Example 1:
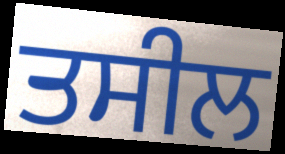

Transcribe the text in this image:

ਤਸੀਲ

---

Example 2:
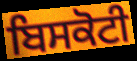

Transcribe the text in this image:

ਬਿਸਕੋਟੀ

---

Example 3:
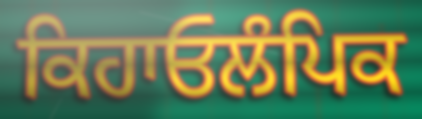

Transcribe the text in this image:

ਕਿਹਾਓਲੰਪਿਕ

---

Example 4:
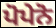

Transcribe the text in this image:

ਪੋਪੇਨੋ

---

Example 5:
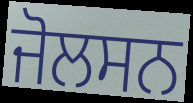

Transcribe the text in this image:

ਜੋਲਸਨ